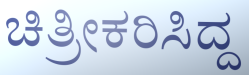
ಚಿತ್ರೀಕರಿಸಿದ್ದ